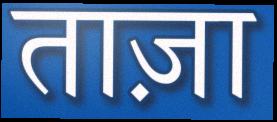
ताज़ा